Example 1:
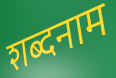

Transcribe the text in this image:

शब्दनाम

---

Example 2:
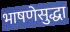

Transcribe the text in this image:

भाषणेसुद्धा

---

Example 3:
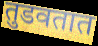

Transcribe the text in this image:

तुडवतात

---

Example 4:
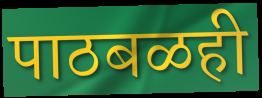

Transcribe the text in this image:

पाठबळही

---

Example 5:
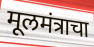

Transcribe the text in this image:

मूलमंत्राचा